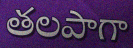
తలపాగా